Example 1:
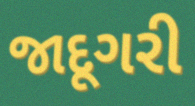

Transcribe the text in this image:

જાદૂગરી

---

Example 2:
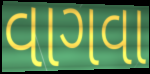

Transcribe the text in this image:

વાગવા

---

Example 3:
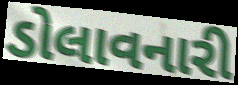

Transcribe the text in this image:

ડોલાવનારી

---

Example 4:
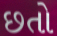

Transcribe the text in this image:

છતો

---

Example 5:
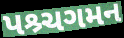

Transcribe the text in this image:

પશ્ર્ચગમન